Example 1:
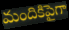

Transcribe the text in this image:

మందికిపైగా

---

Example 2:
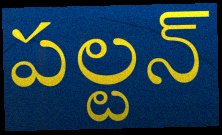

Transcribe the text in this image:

పల్టన్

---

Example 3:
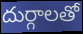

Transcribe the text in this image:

దుర్గాలతో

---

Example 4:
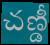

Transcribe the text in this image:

చణ్డీ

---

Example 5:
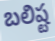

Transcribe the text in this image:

బలిష్ట